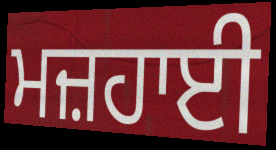
ਮਜ਼ਹਾਈ